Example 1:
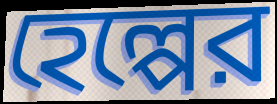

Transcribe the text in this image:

হেল্পের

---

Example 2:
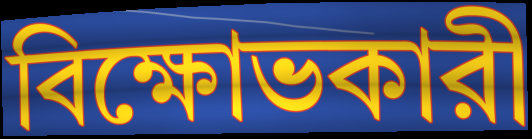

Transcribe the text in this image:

বিক্ষোভকারী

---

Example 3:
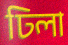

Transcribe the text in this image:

ঢিলা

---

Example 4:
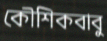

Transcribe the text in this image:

কৌশিকবাবু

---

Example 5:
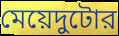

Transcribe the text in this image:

মেয়েদুটোর